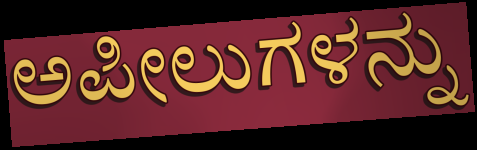
ಅಪೀಲುಗಳನ್ನು